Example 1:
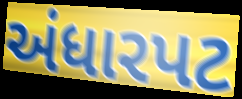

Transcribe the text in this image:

અંધારપટ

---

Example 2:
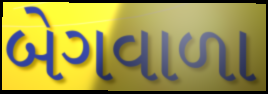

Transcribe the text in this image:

બેગવાળા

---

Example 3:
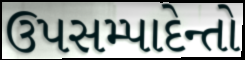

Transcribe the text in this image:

ઉપસમ્પાદેન્તો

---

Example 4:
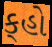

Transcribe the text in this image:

ક્‌હો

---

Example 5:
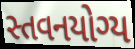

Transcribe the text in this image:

સ્તવનયોગ્ય